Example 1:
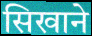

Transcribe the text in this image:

सिखाने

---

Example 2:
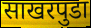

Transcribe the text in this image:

साखरपुडा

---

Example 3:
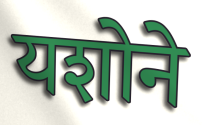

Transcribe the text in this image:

यशोने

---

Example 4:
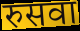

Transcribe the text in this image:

रुसवा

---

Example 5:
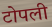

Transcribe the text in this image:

टोपली